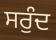
ਸਰੁੰਦ